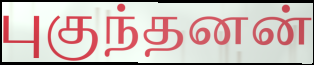
புகுந்தனன்